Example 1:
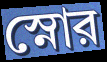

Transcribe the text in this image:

স্নোর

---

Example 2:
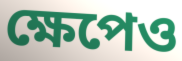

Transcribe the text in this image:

ক্ষেপেও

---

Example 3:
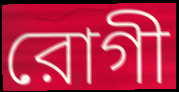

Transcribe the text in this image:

রোগী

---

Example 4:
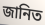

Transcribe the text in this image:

জানিত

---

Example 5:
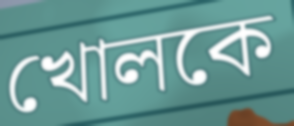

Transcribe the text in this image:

খোলকে